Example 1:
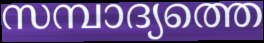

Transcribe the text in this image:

സമ്പാദ്യത്തെ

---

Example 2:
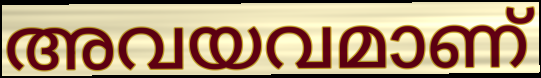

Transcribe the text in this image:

അവയവമാണ്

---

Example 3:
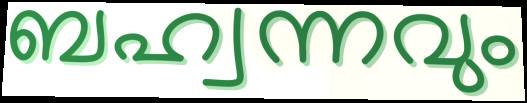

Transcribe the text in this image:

ബഹ്വന്നവും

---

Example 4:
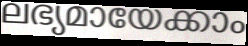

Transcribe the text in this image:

ലഭ്യമായേക്കാം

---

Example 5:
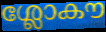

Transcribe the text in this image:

ശ്ലോകൗ